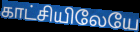
காட்சியிலேயே